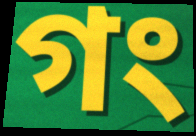
গং